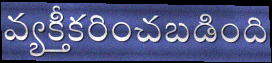
వ్యక్తీకరించబడింది